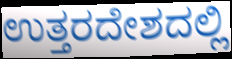
ಉತ್ತರದೇಶದಲ್ಲಿ